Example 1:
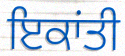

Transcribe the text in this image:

ਇਕਾਂਤੀ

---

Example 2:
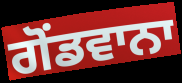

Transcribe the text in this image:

ਗੋਂਡਵਾਨਾ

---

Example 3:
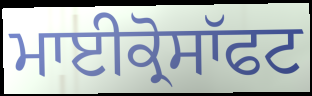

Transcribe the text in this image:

ਮਾਈਕ੍ਰੋਸਾੱਫਟ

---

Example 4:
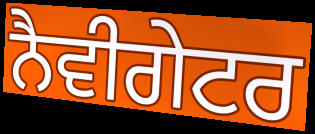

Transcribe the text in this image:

ਨੈਵੀਗੇਟਰ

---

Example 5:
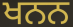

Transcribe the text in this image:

ਖਨਨ